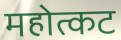
महोत्कट